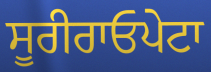
ਸੂਰੀਰਾਓਪੇਟਾ